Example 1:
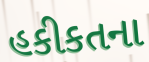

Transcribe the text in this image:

હકીકતના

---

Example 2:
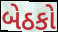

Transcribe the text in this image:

બેઠકો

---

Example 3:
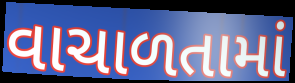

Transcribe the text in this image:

વાચાળતામાં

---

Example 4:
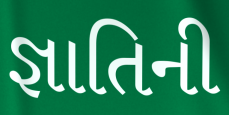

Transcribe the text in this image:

જ્ઞાતિની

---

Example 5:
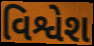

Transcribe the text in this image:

વિશ્વેશ